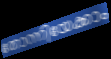
തോന്നിയേക്കാം